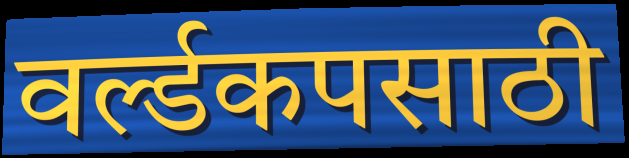
वर्ल्डकपसाठी